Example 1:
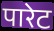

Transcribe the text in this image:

पारेट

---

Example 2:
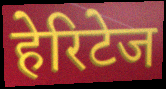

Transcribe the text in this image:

हेरिटेज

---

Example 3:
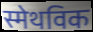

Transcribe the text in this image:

स्मेथविक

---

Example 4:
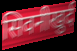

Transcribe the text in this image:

सिवनीखुर्द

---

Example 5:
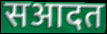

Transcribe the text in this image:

सआदत